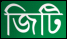
জিটি